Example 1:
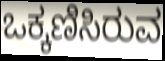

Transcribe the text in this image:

ಒಕ್ಕಣಿಸಿರುವ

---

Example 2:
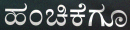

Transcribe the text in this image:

ಹಂಚಿಕೆಗೂ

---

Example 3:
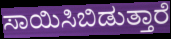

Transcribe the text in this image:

ಸಾಯಿಸಿಬಿಡುತ್ತಾರೆ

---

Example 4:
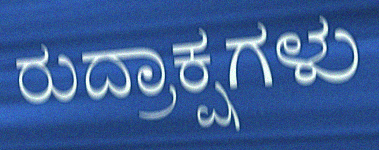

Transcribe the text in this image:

ರುದ್ರಾಕ್ಷಗಳು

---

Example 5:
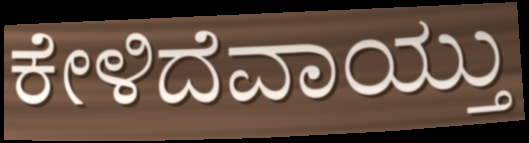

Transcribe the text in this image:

ಕೇಳಿದೆವಾಯ್ತು